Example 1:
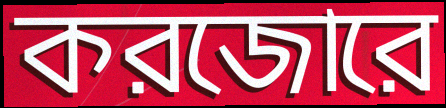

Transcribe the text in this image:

করজোরে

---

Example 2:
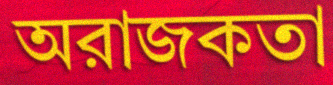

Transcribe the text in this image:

অরাজকতা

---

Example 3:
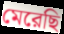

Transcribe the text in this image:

মেরেছি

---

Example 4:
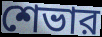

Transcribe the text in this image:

শেভার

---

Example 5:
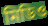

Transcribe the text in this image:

মিডিও